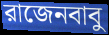
রাজেনবাবু